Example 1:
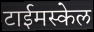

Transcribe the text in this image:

टाईमस्केल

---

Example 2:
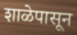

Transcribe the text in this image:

शाळेपासून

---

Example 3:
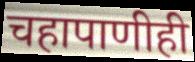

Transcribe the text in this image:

चहापाणीही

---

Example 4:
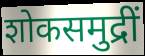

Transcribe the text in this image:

शोकसमुद्रीं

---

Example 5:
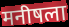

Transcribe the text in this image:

मनीषला